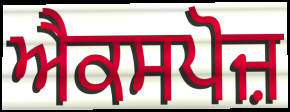
ਐਕਸਪੋਜ਼